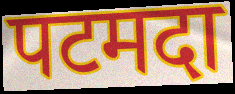
पटमदा